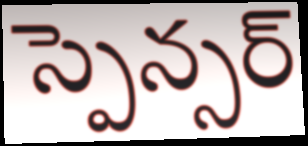
స్పెన్సర్